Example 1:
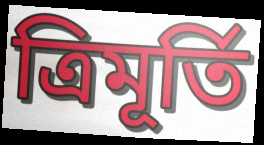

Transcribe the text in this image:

ত্ৰিমূৰ্তি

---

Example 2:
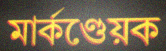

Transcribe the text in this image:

মাৰ্কণ্ডেয়ক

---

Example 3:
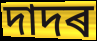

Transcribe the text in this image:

দাদৰ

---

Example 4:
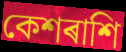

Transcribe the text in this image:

কেশৰাশি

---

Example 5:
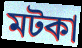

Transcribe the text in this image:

মটকা